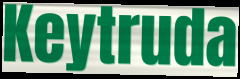
Keytruda